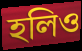
হলিও